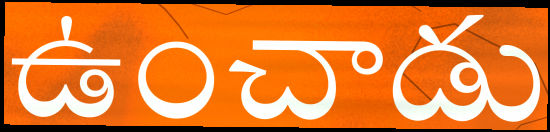
ఉంచాడు